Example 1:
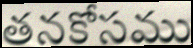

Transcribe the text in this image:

తనకోసము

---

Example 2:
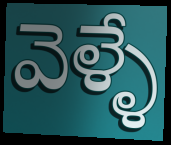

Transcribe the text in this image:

వెళ్ళే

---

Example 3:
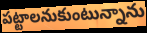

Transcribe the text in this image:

పట్టాలనుకుంటున్నాను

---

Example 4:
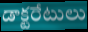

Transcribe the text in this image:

డాక్టరేటులు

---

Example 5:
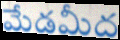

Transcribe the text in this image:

మేడమీద